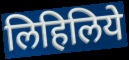
लिहिलिये